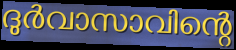
ദുർവാസാവിന്റെ